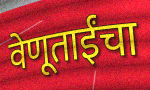
वेणूताईंचा